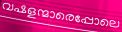
വഷളന്മാരെപ്പോലെ